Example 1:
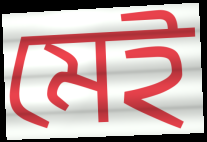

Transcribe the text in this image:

মেই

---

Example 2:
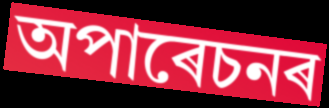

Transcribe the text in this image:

অপাৰেচনৰ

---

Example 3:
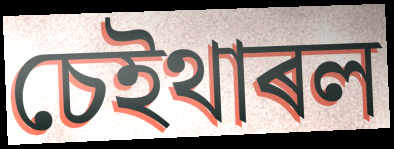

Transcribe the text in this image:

চেইথাৰল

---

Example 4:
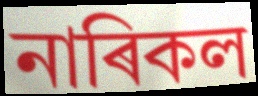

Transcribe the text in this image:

নাৰিকল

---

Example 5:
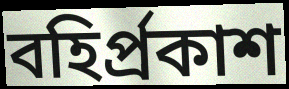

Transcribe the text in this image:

বহিৰ্প্ৰকাশ